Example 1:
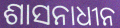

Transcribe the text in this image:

ଶାସନାଧୀନ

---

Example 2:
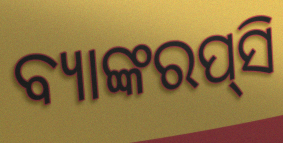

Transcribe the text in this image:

ବ୍ୟାଙ୍କରପ୍‌ସି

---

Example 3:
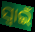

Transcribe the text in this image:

ସ୍ଵାଇଁ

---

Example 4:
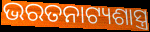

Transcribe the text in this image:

ଭରତନାଟ୍ୟଶାସ୍ତ୍ର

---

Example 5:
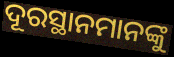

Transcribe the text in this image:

ଦୂରସ୍ଥାନମାନଙ୍କୁ